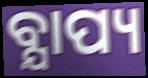
ବ୍ଯାପ୍ୟ